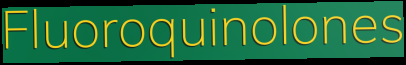
Fluoroquinolones